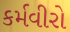
કર્મવીરો